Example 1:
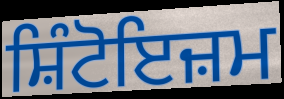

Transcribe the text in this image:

ਸ਼ਿੰਟੋਇਜ਼ਮ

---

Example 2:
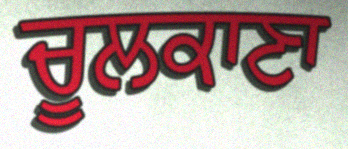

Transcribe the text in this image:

ਚੂਲਕਾਣਾ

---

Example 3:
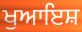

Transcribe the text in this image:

ਖੁਆਇਸ਼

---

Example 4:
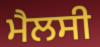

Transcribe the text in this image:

ਮੈਲਸੀ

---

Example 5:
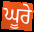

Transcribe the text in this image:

ਘੂਰੇ